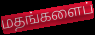
மதங்களைப்